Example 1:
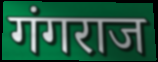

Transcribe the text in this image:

गंगराज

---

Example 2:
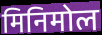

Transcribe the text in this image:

मिनिमोल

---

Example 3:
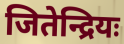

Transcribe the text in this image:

जितेन्द्रियः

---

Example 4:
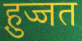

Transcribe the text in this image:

ह़ुज्जत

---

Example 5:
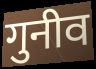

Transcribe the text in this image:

गुनीव